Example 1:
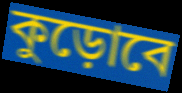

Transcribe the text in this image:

কুড়োবে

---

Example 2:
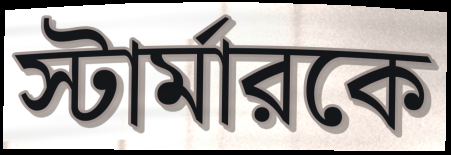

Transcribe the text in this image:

স্টার্মারকে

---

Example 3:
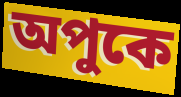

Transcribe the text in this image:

অপুকে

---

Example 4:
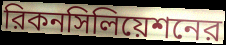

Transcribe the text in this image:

রিকনসিলিয়েশনের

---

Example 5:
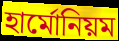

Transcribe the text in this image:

হার্মোনিয়ম